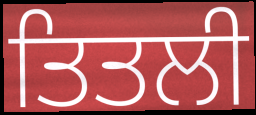
ਤਿਤਲੀ